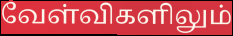
வேள்விகளிலும்